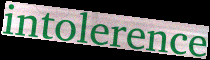
intolerence